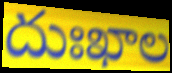
దుఃఖాల